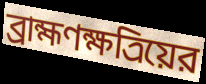
ব্রাহ্মণক্ষত্রিয়ের